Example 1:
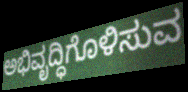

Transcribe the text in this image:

ಅಭಿವೃದ್ಧಿಗೊಳಿಸುವ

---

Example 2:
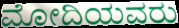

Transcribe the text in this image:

ಮೋದಿಯವರು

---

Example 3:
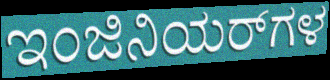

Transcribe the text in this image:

ಇಂಜಿನಿಯರ್‌ಗಳ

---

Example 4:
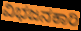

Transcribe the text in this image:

ವಿಭಜನಕಾರಿ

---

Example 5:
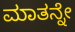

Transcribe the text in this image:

ಮಾತನ್ನೇ